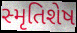
સ્મૃતિશેષ